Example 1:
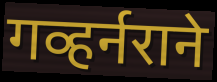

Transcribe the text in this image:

गव्हर्नराने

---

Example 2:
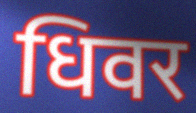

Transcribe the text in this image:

धिवर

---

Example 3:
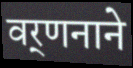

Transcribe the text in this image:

वर्णनाने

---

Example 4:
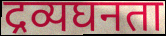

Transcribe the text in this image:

द्रव्यघनता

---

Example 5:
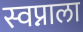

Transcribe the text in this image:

स्वप्नाला